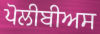
ਪੋਲੀਬੀਅਸ